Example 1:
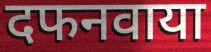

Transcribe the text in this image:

दफनवाया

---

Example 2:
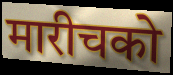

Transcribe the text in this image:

मारीचको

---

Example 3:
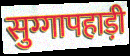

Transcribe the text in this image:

सुग्गापहाड़ी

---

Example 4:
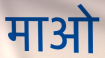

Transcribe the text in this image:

माओ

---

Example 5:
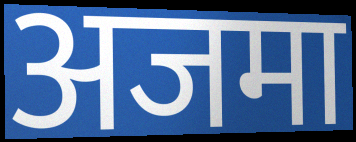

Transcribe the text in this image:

अजमा